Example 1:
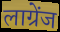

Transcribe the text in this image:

लाग्रेंज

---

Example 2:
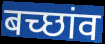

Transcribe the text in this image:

बच्छांव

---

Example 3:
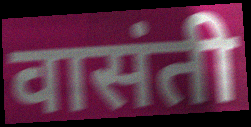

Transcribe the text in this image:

वासंती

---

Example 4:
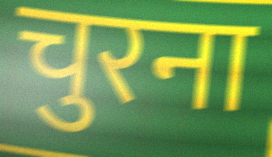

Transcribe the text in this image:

चुरना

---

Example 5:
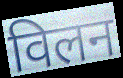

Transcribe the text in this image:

विलन